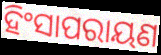
ହିଂସାପରାୟଣ